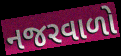
નજરવાળો